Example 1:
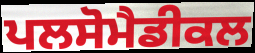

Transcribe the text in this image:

ਪਲਸੋਮੈਡੀਕਲ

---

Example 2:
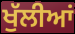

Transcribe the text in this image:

ਖੁੱਲੀਆਂ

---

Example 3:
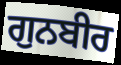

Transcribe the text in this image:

ਗੁਨਬੀਰ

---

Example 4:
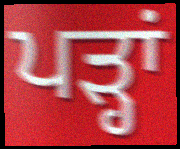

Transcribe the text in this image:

ਪੜ੍ਹਾਂ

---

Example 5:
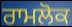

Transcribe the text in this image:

ਰਾਮਲੋਕ